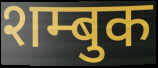
शम्बुक